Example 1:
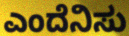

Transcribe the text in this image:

ಎಂದೆನಿಸು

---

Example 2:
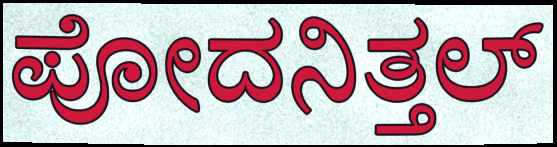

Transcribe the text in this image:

ಪೋದನಿತ್ತಲ್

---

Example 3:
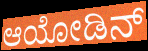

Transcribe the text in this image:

ಆಯೋಡಿನ್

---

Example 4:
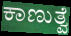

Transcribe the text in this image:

ಕಾಣುತ್ವೆ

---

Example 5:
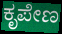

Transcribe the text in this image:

ಕೃಪೇಣ